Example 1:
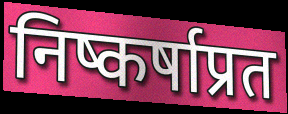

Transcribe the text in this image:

निष्कर्षाप्रत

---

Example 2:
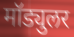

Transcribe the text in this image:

मॉड्युलर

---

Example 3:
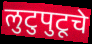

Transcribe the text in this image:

लुटुपुटूचे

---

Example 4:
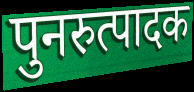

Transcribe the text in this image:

पुनरुत्पादक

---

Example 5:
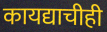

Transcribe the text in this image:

कायद्याचीही